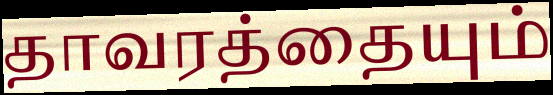
தாவரத்தையும்